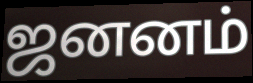
ஜனனம்